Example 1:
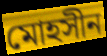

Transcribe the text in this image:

মোহসীন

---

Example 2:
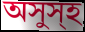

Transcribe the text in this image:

অসুস্হ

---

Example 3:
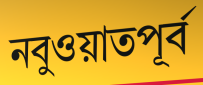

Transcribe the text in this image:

নবুওয়াতপূর্ব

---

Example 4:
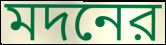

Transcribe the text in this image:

মদনের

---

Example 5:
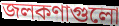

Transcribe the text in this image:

জলকণাগুলো